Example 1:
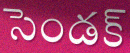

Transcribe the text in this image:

సెండక్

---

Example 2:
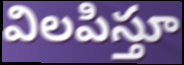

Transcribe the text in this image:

విలపిస్తూ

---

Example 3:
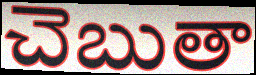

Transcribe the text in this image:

చెబుతా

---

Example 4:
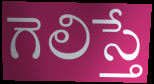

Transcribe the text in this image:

గెలిస్తే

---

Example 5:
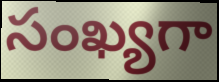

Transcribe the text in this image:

సంఖ్యగా